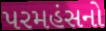
પરમહંસનો